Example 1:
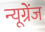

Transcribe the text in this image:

न्यूग्रेंज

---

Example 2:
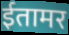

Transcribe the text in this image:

ईतामर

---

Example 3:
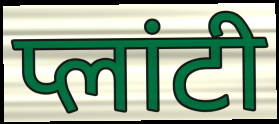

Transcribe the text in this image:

प्लांटी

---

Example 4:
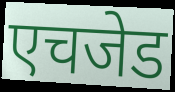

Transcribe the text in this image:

एचजेड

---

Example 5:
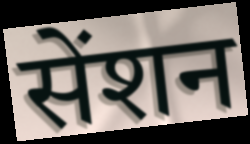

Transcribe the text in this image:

सेंशन